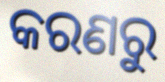
କରଣରୁ